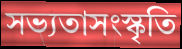
সভ্যতাসংস্কৃতি